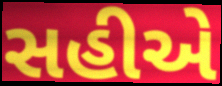
સહીએ